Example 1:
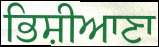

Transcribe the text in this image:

ਭਿਸ਼ੀਆਣਾ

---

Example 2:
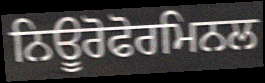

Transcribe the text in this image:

ਨਿਊਰੋਫੋਰਮਿਨਲ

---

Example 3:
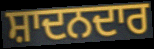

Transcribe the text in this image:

ਸ਼ਾਦਨਦਾਰ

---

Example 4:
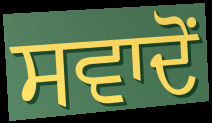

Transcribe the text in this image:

ਸਵਾਦੋਂ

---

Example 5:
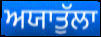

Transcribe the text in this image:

ਅਯਾਤੁੱਲਾ